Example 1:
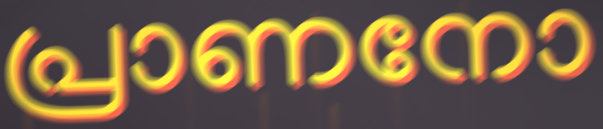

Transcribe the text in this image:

പ്രാണനോ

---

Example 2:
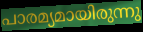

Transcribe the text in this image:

പാരമ്യമായിരുന്നു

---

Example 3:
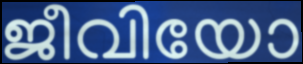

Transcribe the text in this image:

ജീവിയോ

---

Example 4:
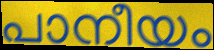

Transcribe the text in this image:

പാനീയം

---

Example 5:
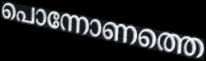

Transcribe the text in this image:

പൊന്നോണത്തെ